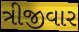
ત્રીજીવાર